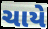
ચાયે